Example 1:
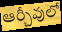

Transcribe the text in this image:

ఆర్చీవులో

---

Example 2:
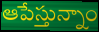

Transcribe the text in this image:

ఆపేస్తున్నాం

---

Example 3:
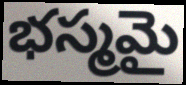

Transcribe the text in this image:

భస్మమై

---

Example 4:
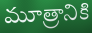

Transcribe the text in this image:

మూత్రానికి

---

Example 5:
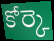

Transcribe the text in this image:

కోర్కె